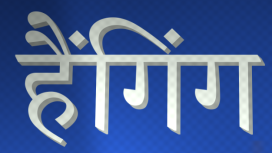
हैंगिंग